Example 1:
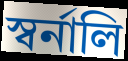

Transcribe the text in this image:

স্বর্নালি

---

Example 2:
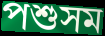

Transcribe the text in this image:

পশুসম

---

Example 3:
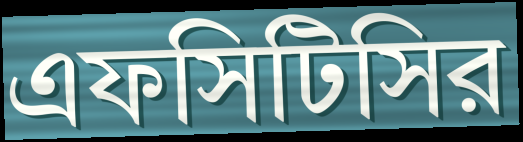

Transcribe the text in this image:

এফসিটিসির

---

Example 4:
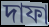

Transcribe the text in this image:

দাফা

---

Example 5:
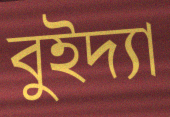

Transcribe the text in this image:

বুইদ্যা